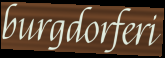
burgdorferi